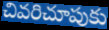
చివరిచూపుకు